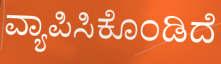
ವ್ಯಾಪಿಸಿಕೊಂಡಿದೆ